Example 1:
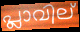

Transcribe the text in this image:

പ്ലാവില്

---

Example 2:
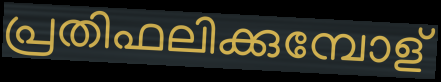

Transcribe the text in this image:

പ്രതിഫലിക്കുമ്പോള്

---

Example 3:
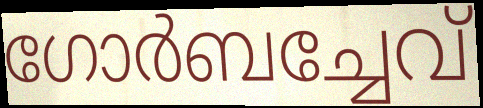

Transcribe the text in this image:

ഗോർബച്ചേവ്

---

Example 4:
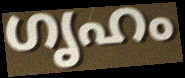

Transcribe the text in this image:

ഗൃഹം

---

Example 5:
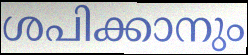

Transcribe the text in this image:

ശപിക്കാനും